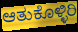
ಆತುಕೊಳ್ಳಿರಿ